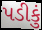
પડીકું